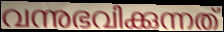
വന്നുഭവിക്കുന്നത്